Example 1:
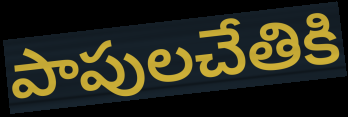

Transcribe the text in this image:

పాపులచేతికి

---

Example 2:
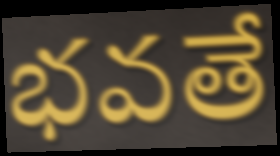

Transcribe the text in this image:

భవతే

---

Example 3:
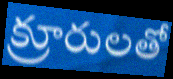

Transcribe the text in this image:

క్రూరులతో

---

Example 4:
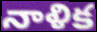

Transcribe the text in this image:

నాళిక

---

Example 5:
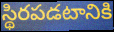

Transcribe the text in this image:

స్థిరపడటానికి